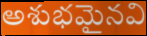
అశుభమైనవి